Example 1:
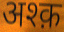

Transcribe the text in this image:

अश्क़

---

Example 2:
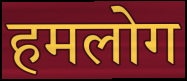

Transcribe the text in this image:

हमलोग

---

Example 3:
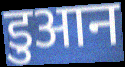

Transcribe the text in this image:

डुआन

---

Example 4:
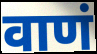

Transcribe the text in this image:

वाणं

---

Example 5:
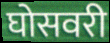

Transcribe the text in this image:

घोसवरी